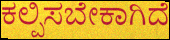
ಕಲ್ಪಿಸಬೇಕಾಗಿದೆ